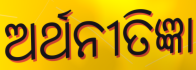
ଅର୍ଥନୀତିଜ୍ଞା